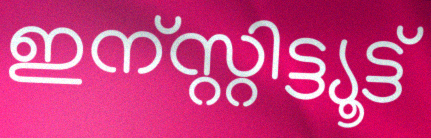
ഇന്സ്റ്റിട്ട്യൂട്ട്